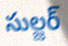
సుల్జర్